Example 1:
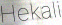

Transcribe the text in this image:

Hekali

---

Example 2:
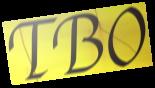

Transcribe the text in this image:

TBO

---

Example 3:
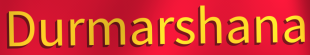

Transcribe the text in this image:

Durmarshana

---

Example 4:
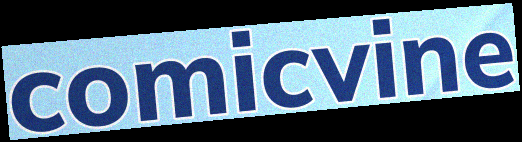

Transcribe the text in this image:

comicvine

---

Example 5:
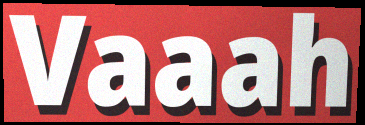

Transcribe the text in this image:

Vaaah